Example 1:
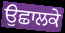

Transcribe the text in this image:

ਉਛਾਲਕੇ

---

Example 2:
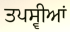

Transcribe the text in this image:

ਤਪਸ੍ਵੀਆਂ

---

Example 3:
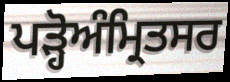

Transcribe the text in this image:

ਪੜ੍ਹੋਅੰਮ੍ਰਿਤਸਰ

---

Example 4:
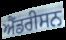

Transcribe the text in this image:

ਐਂਡਰੀਸਨ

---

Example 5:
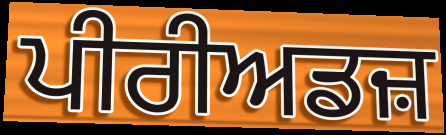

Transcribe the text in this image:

ਪੀਰੀਅਡਜ਼